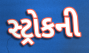
સ્ટ્રોકની